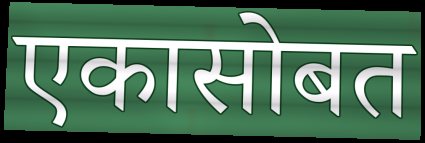
एकासोबत